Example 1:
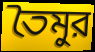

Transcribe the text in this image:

তৈমুর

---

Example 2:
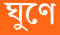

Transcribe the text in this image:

ঘুণে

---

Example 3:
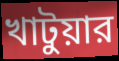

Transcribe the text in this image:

খাটুয়ার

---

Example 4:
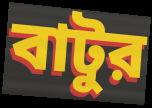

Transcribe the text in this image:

বাটুর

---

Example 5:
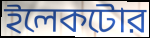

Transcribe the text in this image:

ইলেকটোর